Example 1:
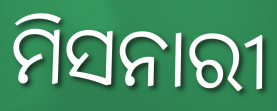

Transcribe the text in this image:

ମିସନାରୀ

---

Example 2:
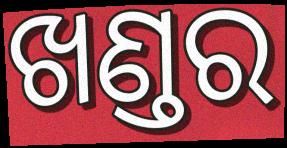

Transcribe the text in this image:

ଖଣ୍ଡର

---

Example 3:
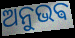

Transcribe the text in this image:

ଅନୁଭଵ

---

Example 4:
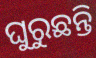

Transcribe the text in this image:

ଘୁରୁଛନ୍ତି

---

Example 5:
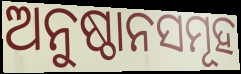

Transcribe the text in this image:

ଅନୁଷ୍ଠାନସମୂହ